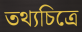
তথ্যচিত্রে